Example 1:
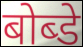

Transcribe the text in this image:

बोब्डे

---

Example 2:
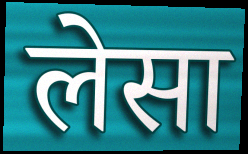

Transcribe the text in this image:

लेसा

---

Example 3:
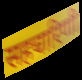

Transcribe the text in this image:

सहचारिणी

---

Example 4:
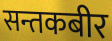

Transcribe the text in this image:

सन्तकबीर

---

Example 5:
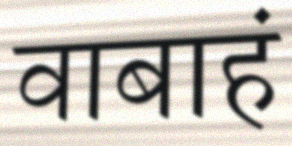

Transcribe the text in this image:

वाबाहं